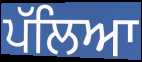
ਪੱਲਿਆ